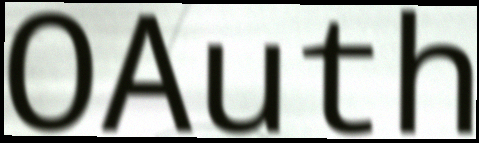
OAuth